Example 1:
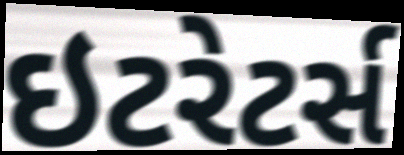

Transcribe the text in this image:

ઇટરેટર્સ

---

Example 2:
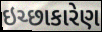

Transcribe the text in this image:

ઇચ્છાકારેણ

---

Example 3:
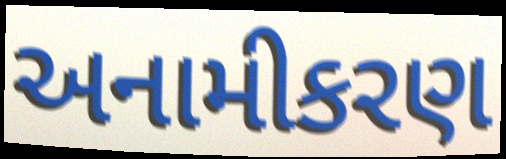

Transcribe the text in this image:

અનામીકરણ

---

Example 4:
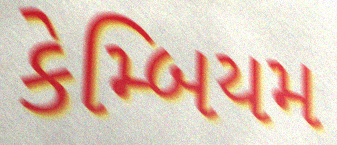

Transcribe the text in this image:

કેમ્બિયમ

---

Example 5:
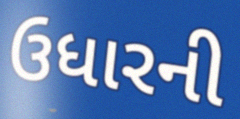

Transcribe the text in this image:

ઉધારની